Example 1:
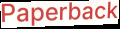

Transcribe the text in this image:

Paperback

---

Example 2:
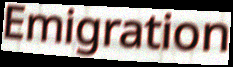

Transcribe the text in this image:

Emigration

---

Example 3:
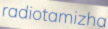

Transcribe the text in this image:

radiotamizha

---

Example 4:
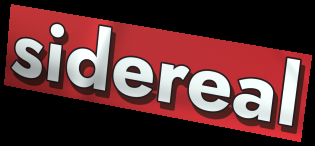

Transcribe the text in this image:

sidereal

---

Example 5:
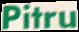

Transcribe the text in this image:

Pitru